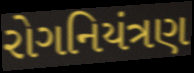
રોગનિયંત્રણ